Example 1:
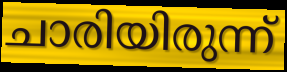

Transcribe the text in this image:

ചാരിയിരുന്ന്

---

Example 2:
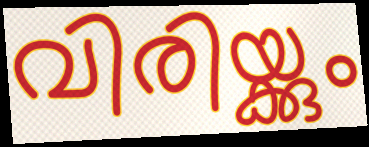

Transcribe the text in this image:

വിരിയ്ക്കും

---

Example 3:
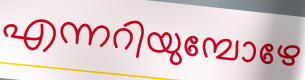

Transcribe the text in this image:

എന്നറിയുമ്പോഴേ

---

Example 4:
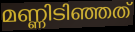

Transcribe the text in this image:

മണ്ണിടിഞ്ഞത്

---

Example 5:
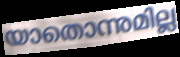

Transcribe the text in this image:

യാതൊന്നുമില്ല